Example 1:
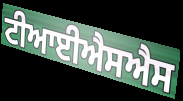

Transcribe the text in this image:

ਟੀਆਈਐਸਐਸ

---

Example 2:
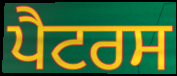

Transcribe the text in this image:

ਪੈਟਰਸ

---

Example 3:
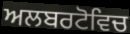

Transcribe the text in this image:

ਅਲਬਰਟੋਵਿਚ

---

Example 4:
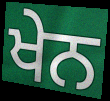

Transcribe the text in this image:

ਖੇਨ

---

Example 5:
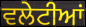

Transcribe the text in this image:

ਵਲੇਟੀਆਂ